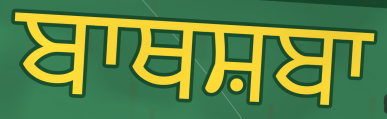
ਬਾਥਸ਼ਬਾ